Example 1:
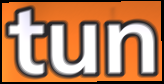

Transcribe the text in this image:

tun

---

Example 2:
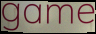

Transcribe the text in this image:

game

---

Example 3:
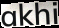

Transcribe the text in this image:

akhi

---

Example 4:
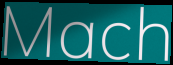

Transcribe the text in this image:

Mach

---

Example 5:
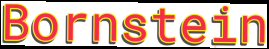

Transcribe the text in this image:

Bornstein